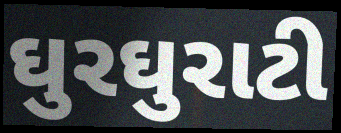
ઘુરઘુરાટી